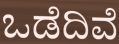
ಒಡೆದಿವೆ